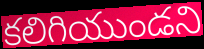
కలిగియుండని